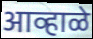
आव्हाळे